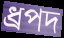
ধ্রপদ